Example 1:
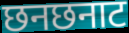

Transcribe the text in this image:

छनछनाट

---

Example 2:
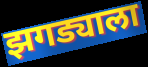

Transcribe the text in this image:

झगड्याला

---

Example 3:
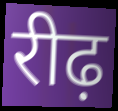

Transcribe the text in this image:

रीढ़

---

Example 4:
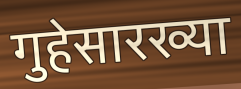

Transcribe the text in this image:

गुहेसारख्या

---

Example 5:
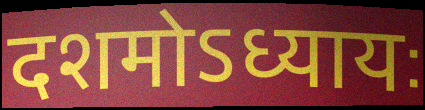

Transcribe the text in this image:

दशमोऽध्यायः